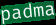
padma